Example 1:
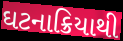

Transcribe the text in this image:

ઘટનાક્રિયાથી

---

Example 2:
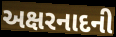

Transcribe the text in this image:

અક્ષરનાદની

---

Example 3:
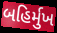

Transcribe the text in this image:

બહિર્મુખ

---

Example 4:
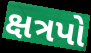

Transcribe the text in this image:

ક્ષત્રપો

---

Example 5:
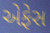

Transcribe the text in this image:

એફેસ